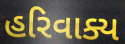
હરિવાક્ય